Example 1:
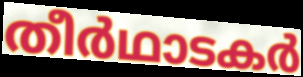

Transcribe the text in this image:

തീർഥാടകർ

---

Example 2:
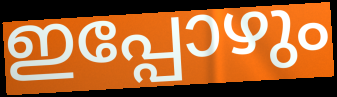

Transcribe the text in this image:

ഇപ്പോഴും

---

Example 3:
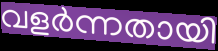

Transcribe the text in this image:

വളർന്നതായി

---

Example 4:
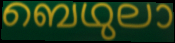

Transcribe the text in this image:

ബെഥുലാ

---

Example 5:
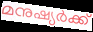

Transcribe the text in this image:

മനുഷ്യർക്ക്